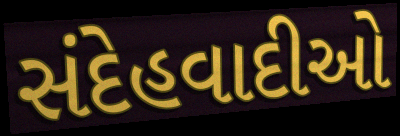
સંદેહવાદીઓ